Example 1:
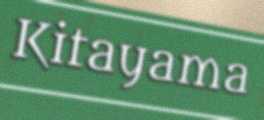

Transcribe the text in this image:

Kitayama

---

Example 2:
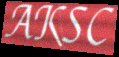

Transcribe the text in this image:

AKSC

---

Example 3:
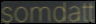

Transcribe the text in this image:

somdatt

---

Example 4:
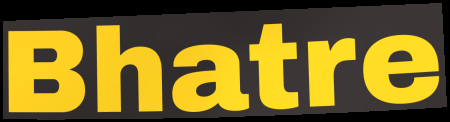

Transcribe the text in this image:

Bhatre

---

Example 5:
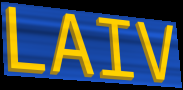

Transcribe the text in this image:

LAIV